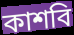
কাশবি